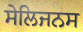
ਸੇਲਿਜਨਸ